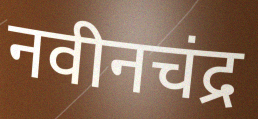
नवीनचंद्र